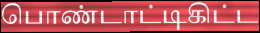
பொண்டாட்டிகிட்ட